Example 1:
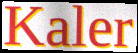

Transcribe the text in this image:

Kaler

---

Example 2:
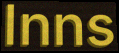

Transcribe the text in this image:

Inns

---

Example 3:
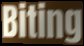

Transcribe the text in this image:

Biting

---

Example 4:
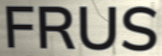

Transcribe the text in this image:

FRUS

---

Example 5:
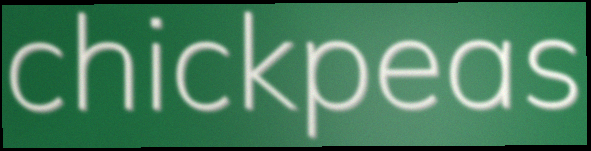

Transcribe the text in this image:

chickpeas